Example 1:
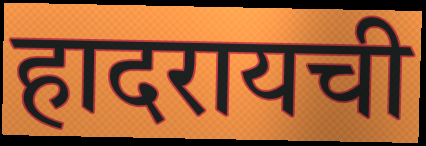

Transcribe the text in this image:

हादरायची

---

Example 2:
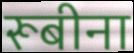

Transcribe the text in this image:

रूबीना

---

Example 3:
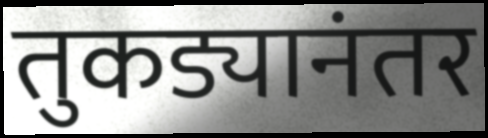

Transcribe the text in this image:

तुकड्यानंतर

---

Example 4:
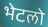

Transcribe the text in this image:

भेटलो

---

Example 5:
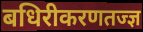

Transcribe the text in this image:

बधिरीकरणतज्ज्ञ